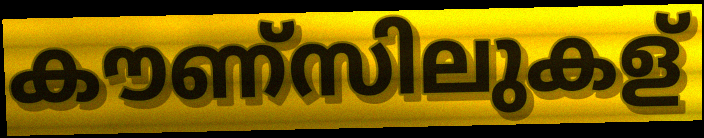
കൗണ്സിലുകള്